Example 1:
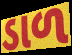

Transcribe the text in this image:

ડાળ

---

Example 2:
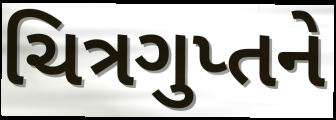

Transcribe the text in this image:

ચિત્રગુપ્તને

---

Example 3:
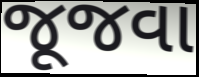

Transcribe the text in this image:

જૂજવા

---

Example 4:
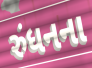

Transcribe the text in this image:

રુંધનના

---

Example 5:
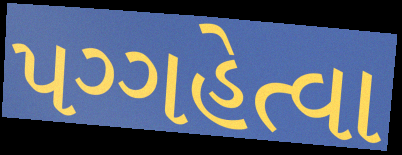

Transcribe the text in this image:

પગ્ગહેત્વા